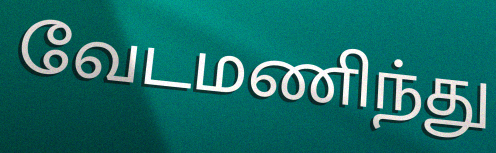
வேடமணிந்து